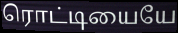
ரொட்டியையே